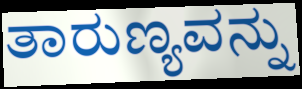
ತಾರುಣ್ಯವನ್ನು